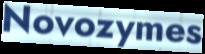
Novozymes